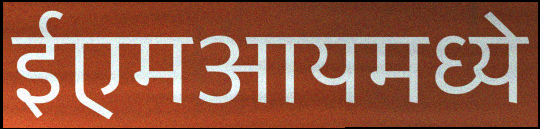
ईएमआयमध्ये